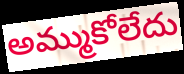
అమ్ముకోలేదు